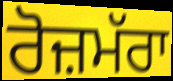
ਰੋਜ਼ਮੱਰਾ